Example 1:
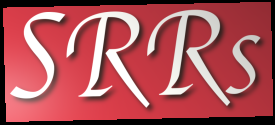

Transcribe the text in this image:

SRRs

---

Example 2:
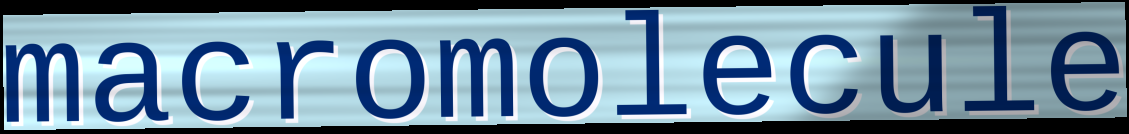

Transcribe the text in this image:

macromolecule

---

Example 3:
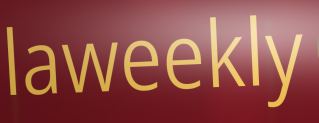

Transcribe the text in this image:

laweekly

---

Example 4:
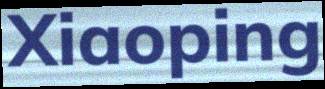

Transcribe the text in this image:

Xiaoping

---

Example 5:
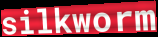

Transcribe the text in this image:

silkworm